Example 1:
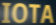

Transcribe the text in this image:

IOTA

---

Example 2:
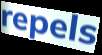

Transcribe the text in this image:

repels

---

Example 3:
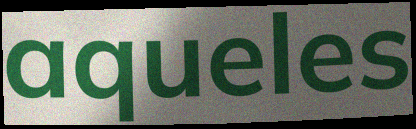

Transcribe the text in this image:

aqueles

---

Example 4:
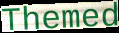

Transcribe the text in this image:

Themed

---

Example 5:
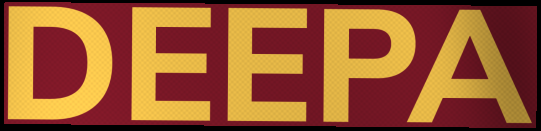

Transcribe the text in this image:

DEEPA